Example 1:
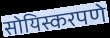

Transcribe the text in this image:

सोयिस्करपणे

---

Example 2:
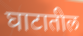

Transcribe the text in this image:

घाटातील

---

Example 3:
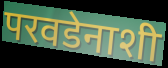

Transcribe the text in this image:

परवडेनाशी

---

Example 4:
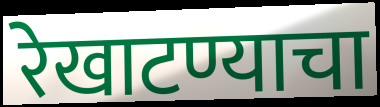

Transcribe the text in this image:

रेखाटण्याचा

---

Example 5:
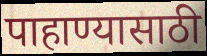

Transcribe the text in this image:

पाहाण्यासाठी